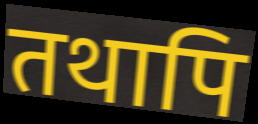
तथापि